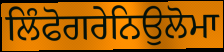
ਲਿੰਫੋਗਰੇਨਿਉਲੋਮਾ